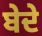
ਬੇਦੇ